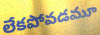
లేకపోవడమూ